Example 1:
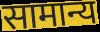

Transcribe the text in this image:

सामान्य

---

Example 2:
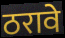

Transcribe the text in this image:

ठरावे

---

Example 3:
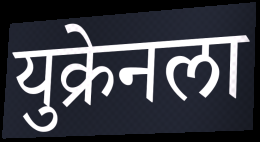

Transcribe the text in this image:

युक्रेनला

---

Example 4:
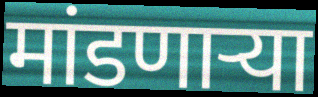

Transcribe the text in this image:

मांडणाऱ्या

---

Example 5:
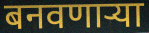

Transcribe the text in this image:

बनवणाऱ्या